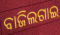
ବାଜିଲଗାଇ